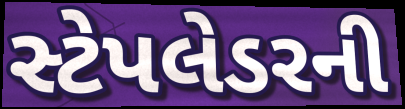
સ્ટેપલેડરની